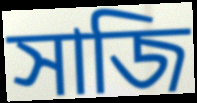
সাজি